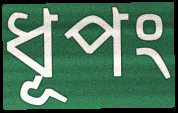
ধূপং